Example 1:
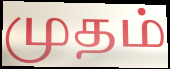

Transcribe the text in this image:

முதம்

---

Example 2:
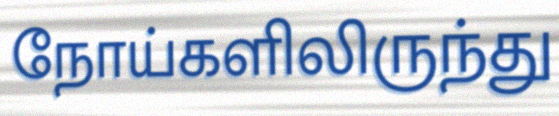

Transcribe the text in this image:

நோய்களிலிருந்து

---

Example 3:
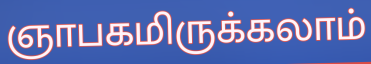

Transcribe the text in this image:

ஞாபகமிருக்கலாம்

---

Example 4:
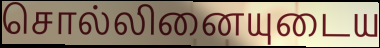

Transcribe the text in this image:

சொல்லினையுடைய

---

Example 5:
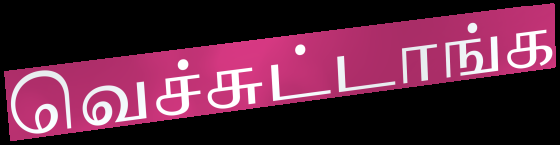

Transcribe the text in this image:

வெச்சுட்டாங்க